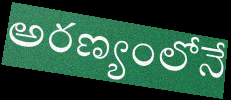
అరణ్యంలోనే